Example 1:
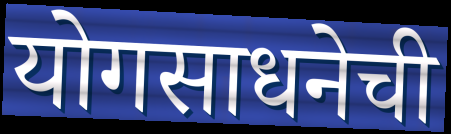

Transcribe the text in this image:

योगसाधनेची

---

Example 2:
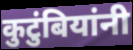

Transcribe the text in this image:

कुटुंबियांनी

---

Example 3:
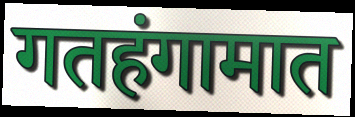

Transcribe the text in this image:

गतहंगामात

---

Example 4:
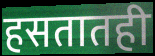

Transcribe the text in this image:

हसतातही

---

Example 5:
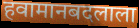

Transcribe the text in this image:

हवामानबदलाला